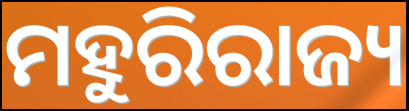
ମହୁରିରାଜ୍ୟ